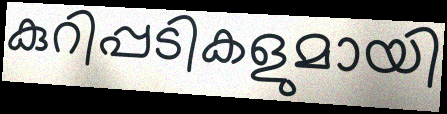
കുറിപ്പടികളുമായി